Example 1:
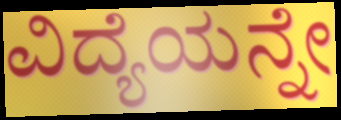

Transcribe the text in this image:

ವಿದ್ಯೆಯನ್ನೇ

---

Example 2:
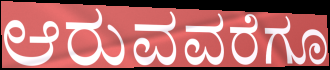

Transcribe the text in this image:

ಆರುವವರೆಗೂ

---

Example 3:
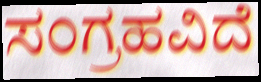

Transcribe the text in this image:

ಸಂಗ್ರಹವಿದೆ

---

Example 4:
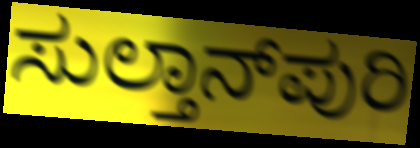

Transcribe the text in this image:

ಸುಲ್ತಾನ್‌ಪುರಿ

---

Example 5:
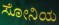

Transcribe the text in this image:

ಸೋನಿಯ